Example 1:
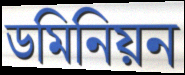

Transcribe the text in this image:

ডমিনিয়ন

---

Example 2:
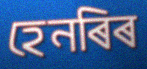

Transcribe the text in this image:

হেনৰিৰ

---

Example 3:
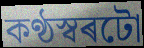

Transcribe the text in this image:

কণ্ঠস্বৰটো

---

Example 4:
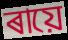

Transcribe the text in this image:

ৰায়ে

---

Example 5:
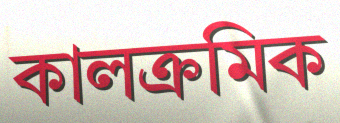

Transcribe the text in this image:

কালক্ৰমিক